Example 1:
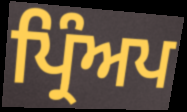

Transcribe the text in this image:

ਪ੍ਰਿੰਅਪ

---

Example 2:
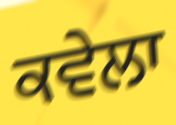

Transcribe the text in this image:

ਕਵੇਲਾ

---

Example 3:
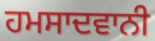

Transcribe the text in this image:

ਹਮਸਾਦਵਾਨੀ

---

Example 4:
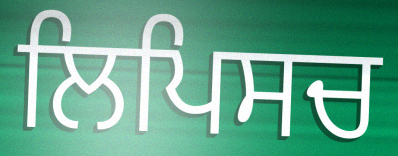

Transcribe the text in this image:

ਲਿਪਿਸਚ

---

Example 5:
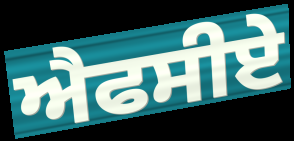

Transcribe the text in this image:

ਐਫਸੀਏ